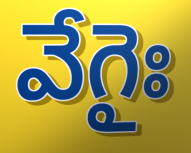
వేగైః